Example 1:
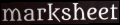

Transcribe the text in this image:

marksheet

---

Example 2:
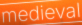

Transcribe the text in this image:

medieval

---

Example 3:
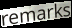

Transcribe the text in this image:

remarks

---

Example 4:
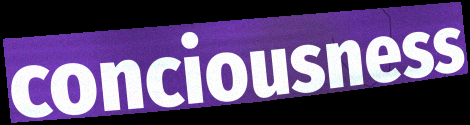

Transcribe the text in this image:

conciousness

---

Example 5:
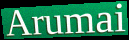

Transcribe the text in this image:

Arumai